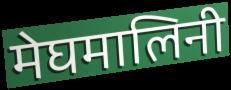
मेघमालिनी